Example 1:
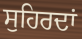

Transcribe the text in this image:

ਸੁਹਿਰਦਾਂ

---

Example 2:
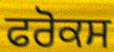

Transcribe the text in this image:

ਫਰੋਕਸ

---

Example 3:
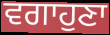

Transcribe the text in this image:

ਵਗਾਹੁਣਾ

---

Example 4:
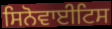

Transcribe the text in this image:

ਸਿਨੋਵਾਈਟਿਸ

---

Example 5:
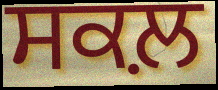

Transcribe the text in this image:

ਸਕਲ਼